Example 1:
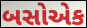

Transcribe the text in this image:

બસોએક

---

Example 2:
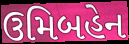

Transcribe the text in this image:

ઉમિબહેન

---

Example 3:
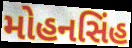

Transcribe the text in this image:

મોહનસિંહ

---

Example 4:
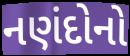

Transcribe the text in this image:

નણંદોનો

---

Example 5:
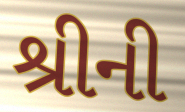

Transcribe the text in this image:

શ્રીની